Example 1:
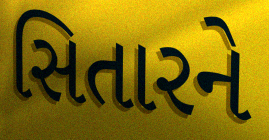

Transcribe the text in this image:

સિતારને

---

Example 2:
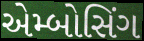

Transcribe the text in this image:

એમ્બોસિંગ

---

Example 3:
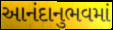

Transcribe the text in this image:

આનંદાનુભવમાં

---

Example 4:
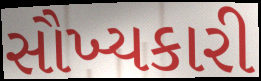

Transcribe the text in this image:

સૌખ્યકારી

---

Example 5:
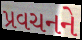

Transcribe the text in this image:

પ્રવચનને